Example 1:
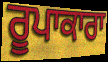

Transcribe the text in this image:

ਰੂਪਾਕਾਰਾ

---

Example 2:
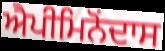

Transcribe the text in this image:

ਐਪੀਮਿਨੋਂਦਾਸ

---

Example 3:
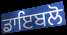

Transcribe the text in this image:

ਡਾਇਬਲੋ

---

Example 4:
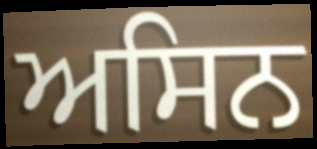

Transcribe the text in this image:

ਅਸਿਨ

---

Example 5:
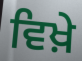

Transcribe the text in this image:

ਵਿਖ਼ੇ